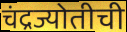
चंद्रज्योतीची